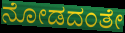
ನೋಡದಂತೇ